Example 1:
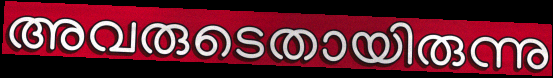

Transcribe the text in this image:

അവരുടെതായിരുന്നു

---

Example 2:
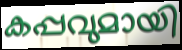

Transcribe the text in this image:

കപ്പവുമായി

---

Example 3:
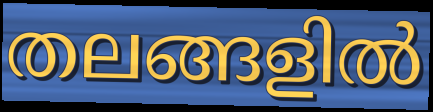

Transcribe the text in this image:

തലങ്ങളിൽ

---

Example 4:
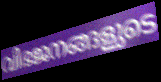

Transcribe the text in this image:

വിഭജനങ്ങളുടെ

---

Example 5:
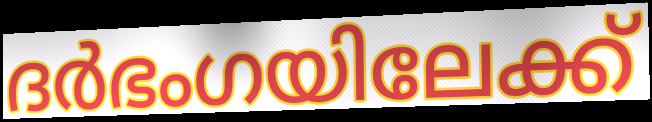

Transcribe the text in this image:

ദർഭംഗയിലേക്ക്